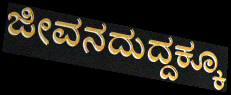
ಜೀವನದುದ್ದಕ್ಕೂ